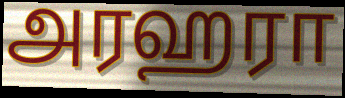
அரஹரா